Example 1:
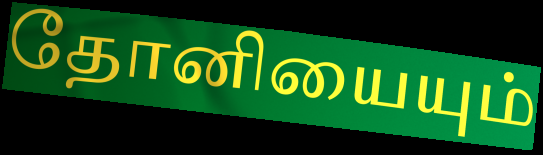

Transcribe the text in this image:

தோனியையும்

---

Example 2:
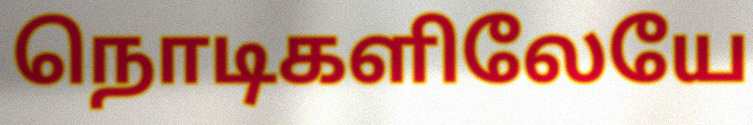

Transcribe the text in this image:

நொடிகளிலேயே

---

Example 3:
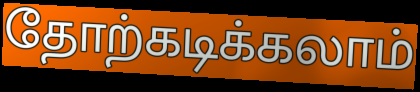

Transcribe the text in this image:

தோற்கடிக்கலாம்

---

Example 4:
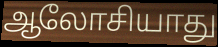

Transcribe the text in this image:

ஆலோசியாது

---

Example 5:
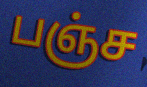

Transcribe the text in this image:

பஞ்ச